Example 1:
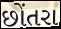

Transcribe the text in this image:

છોંતરા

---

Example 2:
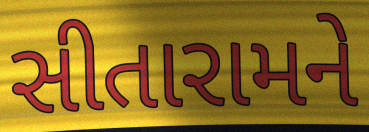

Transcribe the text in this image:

સીતારામને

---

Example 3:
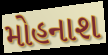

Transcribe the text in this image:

મોહનાશ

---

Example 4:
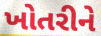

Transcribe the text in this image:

ખોતરીને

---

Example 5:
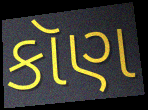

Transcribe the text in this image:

કૉણ